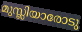
മുസ്ലിയാരോടു